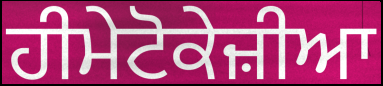
ਹੀਮੇਟੋਕੇਜ਼ੀਆ